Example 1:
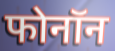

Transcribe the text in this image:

फोनॉन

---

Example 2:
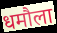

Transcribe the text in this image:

धमौला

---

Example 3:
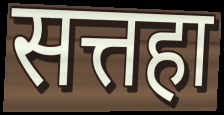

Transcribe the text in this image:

सत्तहा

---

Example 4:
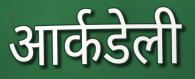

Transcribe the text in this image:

आर्कडेली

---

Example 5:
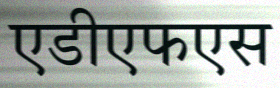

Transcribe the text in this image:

एडीएफएस